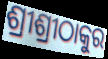
ଶ୍ରୀଶ୍ରୀଠାକୁର